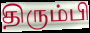
திரும்பி